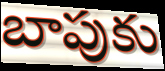
బాపుకు